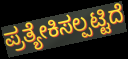
ಪ್ರತ್ಯೇಕಿಸಲ್ಪಟ್ಟಿದೆ